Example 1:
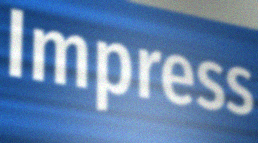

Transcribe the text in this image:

Impress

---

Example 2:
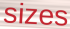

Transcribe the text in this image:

sizes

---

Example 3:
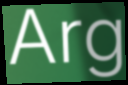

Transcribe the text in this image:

Arg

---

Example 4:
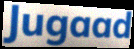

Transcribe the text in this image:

Jugaad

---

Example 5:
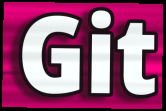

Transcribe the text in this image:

Git